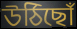
উঠিছোঁ